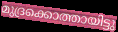
മുദ്രക്കൊത്തായിട്ടു